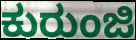
ಕುರುಂಜಿ